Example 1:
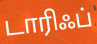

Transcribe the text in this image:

டாரிஃப்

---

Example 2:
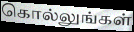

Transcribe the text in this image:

கொல்லுங்கள்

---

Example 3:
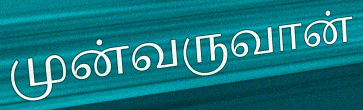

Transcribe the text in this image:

முன்வருவான்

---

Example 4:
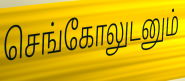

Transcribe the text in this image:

செங்கோலுடனும்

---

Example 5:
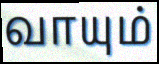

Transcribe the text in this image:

வாயும்